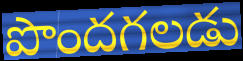
పొందగలడు